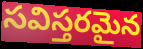
సవిస్తరమైన